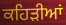
ਕਹਿੜੀਆਂ